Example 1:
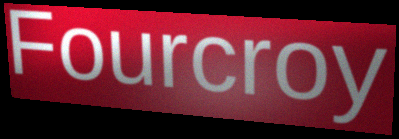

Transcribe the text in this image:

Fourcroy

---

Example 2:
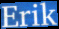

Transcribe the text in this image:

Erik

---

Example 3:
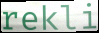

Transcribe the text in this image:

rekli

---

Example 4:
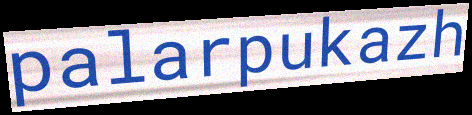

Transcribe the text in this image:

palarpukazh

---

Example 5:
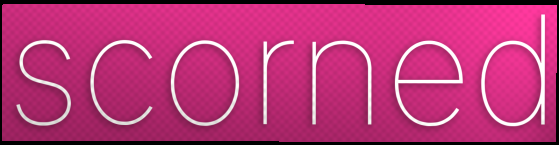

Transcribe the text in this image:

scorned